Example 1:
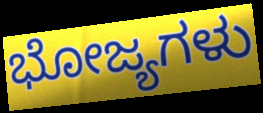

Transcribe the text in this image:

ಭೋಜ್ಯಗಳು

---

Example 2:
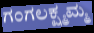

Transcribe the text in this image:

ಗಂಗಲಕ್ಷ್ಮಮ್ಮ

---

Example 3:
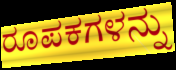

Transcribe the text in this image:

ರೂಪಕಗಳನ್ನು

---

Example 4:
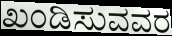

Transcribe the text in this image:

ಖಂಡಿಸುವವರ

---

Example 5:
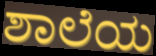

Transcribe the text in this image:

ಶಾಲೆಯ